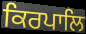
ਕਿਰਪਾਲਿ